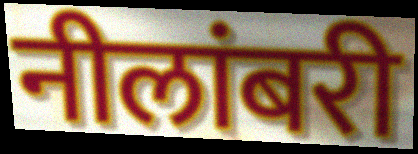
नीलांबरी